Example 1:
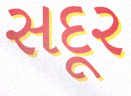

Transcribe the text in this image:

સદૂર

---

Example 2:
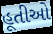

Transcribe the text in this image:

હૂતીઓ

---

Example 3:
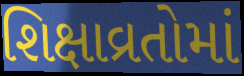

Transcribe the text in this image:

શિક્ષાવ્રતોમાં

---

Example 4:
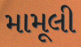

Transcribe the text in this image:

મામૂલી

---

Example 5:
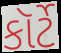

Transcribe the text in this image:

કૉર્ટે